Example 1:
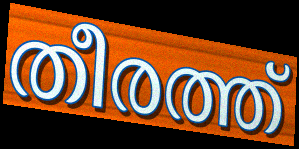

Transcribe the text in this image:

തീരത്ത്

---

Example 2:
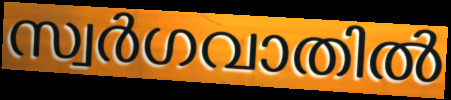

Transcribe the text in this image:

സ്വർഗവാതിൽ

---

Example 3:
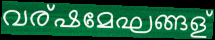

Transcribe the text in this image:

വര്ഷമേഘങ്ങള്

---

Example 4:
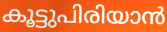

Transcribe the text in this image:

കൂട്ടുപിരിയാൻ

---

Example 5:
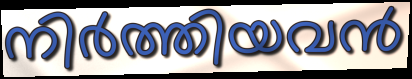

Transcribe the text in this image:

നിർത്തിയവൻ